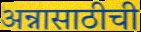
अन्नासाठीची